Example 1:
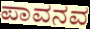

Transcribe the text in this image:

ಪಾವನವ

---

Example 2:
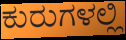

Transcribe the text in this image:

ಕುರುಗಳಲ್ಲಿ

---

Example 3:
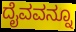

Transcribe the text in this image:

ದೈವವನ್ನೂ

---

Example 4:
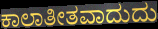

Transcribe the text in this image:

ಕಾಲಾತೀತವಾದುದು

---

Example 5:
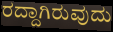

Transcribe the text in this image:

ರದ್ದಾಗಿರುವುದು